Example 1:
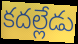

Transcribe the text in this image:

కదల్లేడు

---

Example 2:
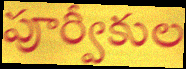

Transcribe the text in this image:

పూర్వీకుల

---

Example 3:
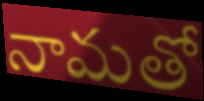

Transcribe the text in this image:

నామతో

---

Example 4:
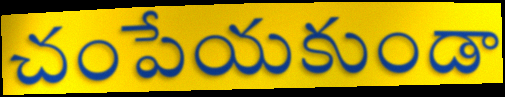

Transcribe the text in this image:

చంపేయకుండా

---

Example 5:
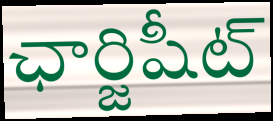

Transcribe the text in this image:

ఛార్జిషీట్